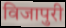
विजापुरी